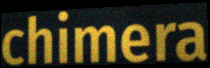
chimera